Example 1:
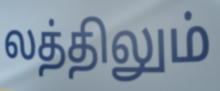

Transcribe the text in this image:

லத்திலும்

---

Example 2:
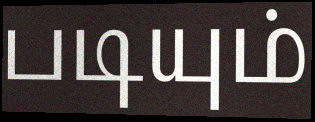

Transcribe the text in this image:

படியும்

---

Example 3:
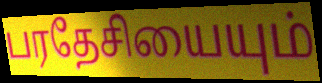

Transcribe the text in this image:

பரதேசியையும்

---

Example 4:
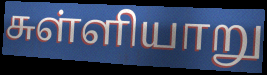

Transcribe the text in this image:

சுள்ளியாறு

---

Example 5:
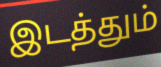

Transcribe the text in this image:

இடத்தும்